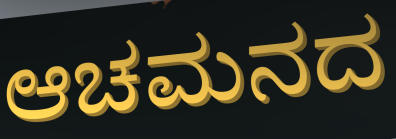
ಆಚಮನದ